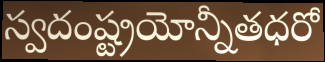
స్వదంష్ట్రయోన్నీతధరో